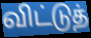
விட்டுத்